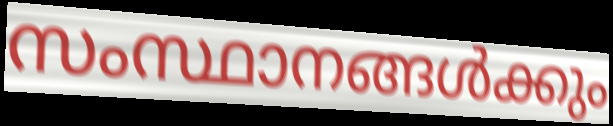
സംസ്ഥാനങ്ങൾക്കും